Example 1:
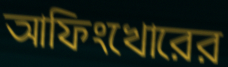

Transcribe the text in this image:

আফিংখোরের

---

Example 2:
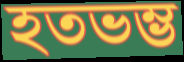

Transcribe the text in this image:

হতভম্ভ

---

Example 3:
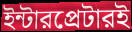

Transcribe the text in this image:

ইন্টারপ্রেটারই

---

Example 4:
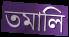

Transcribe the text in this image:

তমালি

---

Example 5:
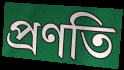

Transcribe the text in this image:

প্রণতি